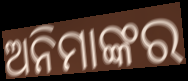
ଅନିମାଙ୍କର